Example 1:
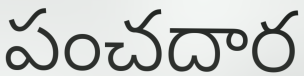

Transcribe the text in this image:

పంచదార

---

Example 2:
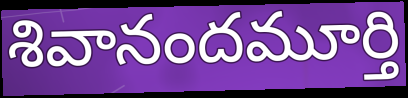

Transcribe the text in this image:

శివానందమూర్తి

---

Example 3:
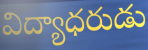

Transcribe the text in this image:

విద్యాధరుడు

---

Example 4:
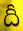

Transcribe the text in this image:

దీ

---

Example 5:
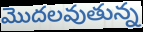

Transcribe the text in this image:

మొదలవుతున్న